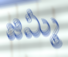
జిమ్మీ